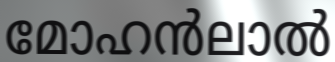
മോഹൻലാൽ